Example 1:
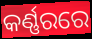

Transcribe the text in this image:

କର୍ଣ୍ଣରରେ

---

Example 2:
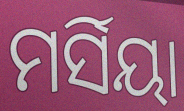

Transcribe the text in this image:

ମର୍ସିୟା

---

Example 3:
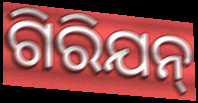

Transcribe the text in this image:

ଗିରିଯନ୍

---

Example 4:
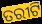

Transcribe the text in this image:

ତରୀଟି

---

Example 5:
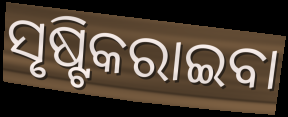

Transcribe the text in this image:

ସୃଷ୍ଟିକରାଇବା